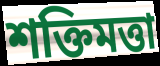
শক্তিমত্তা